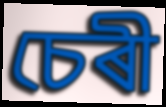
চেৰী